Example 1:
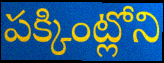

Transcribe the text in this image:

పక్కింట్లోని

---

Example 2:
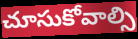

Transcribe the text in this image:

చూసుకోవాల్సి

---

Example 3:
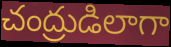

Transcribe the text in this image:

చంద్రుడిలాగా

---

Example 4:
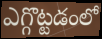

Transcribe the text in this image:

ఎగ్గొట్టడంలో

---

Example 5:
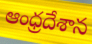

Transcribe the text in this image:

ఆంధ్రదేశాన